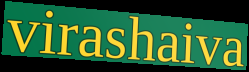
virashaiva